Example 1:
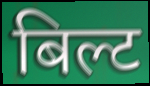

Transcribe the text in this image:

बिल्ट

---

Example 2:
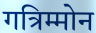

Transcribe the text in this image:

गत्रिम्मोन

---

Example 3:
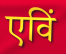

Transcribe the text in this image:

एविं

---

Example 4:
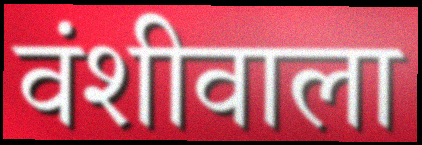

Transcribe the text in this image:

वंशीवाला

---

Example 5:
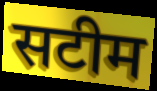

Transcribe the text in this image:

सटीम